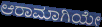
ಆರಾಮಾಗಿಯೇ